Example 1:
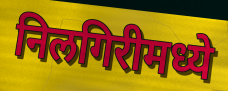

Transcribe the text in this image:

निलगिरीमध्ये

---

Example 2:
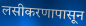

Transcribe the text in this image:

लसीकरणापासून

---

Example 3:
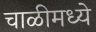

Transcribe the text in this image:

चाळीमध्ये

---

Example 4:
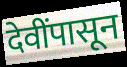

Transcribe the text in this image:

देवींपासून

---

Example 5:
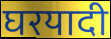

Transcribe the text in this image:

घरयादी